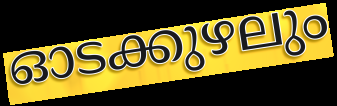
ഓടക്കുഴലും